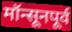
मॉन्सूनपूर्व